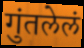
गुंतलेलं